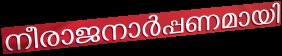
നീരാജനാർപ്പണമായി